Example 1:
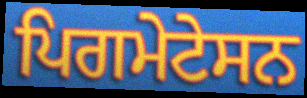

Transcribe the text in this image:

ਪਿਗਮੇਟੇਸਨ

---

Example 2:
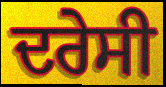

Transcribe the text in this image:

ਦਰੇਸੀ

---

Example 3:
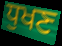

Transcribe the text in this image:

ਧੁਖਣ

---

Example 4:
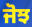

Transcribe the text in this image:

ਜੋਝ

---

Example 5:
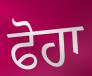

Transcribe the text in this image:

ਫੋਹਾ